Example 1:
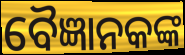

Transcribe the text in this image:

ବୈଜ୍ଞାନକଙ୍କ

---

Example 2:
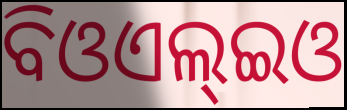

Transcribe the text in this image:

ବିଓଏଲ୍ଇଓ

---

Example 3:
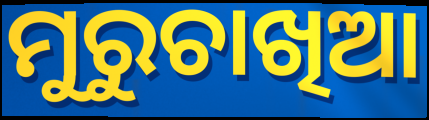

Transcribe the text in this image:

ମୁରୁଚାଖିଆ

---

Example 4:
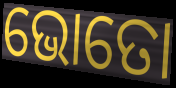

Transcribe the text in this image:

ଭୋତୋ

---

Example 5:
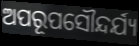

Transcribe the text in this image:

ଅପରୂପସୌନ୍ଦର୍ଯ୍ୟ